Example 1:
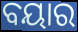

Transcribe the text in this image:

ବୟାର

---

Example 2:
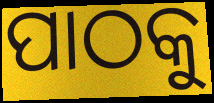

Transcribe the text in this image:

ପାଠକୁ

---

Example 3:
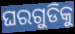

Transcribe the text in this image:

ଘରଗୁଡିକୁ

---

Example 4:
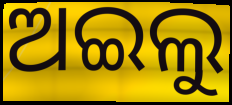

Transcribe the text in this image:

ଅଇଲୁ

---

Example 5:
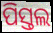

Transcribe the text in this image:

ପିସ୍ତଲ